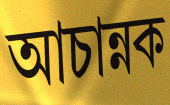
আচান্নক